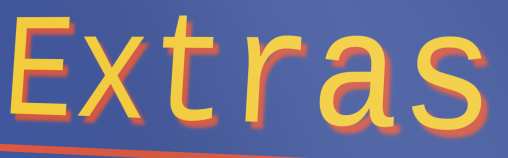
Extras